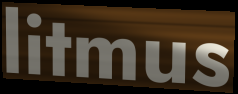
litmus